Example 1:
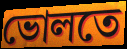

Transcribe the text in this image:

ভোলতে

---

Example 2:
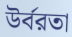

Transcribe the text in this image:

উর্বরতা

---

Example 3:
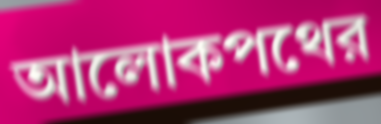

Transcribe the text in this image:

আলোকপথের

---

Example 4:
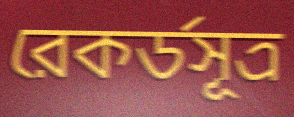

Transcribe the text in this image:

রেকর্ডসূত্র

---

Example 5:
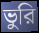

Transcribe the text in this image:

ভুরি